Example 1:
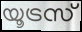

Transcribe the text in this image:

യൂട്രസ്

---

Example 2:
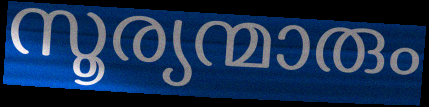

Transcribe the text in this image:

സൂര്യന്മാരും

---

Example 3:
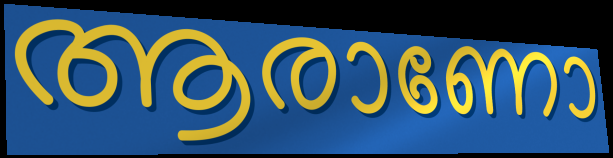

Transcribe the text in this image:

ആരാണോ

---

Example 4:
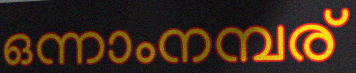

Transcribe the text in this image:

ഒന്നാംനമ്പര്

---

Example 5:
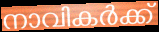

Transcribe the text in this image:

നാവികർക്ക്